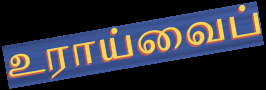
உராய்வைப்